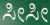
ಸೀಸೀ